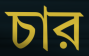
চার